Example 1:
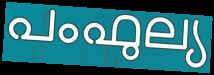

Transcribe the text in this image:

പംഫുല്യ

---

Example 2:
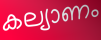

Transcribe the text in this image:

കല്യാണം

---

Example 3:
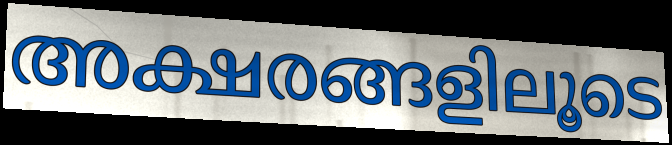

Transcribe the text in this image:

അക്ഷരങ്ങളിലൂടെ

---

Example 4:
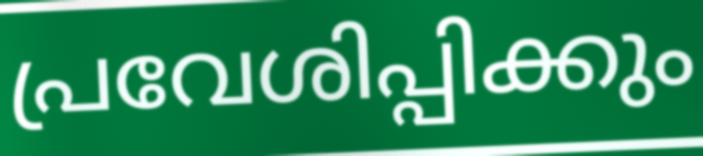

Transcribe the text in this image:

പ്രവേശിപ്പിക്കും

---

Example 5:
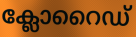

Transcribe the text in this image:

ക്ലോറൈഡ്